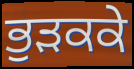
ਭੁੜਕਕੇ